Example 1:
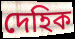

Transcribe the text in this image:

দেহিক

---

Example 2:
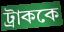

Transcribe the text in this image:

ট্রাককে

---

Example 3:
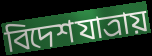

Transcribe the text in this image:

বিদেশযাত্রায়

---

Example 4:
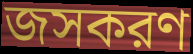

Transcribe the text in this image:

জসকরণ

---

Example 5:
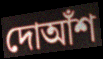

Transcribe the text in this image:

দোআঁশ